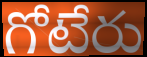
గోటేరు